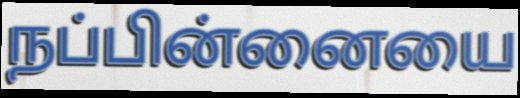
நப்பின்னையை